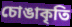
চোঙাকৃতি